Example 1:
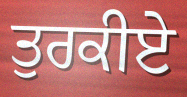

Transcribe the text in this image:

ਤੁਰਕੀਏ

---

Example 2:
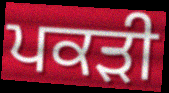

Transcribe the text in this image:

ਪਕੜੀ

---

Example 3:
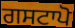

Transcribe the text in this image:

ਗਸਟਾਪੋ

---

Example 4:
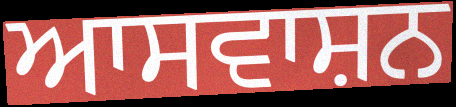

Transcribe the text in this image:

ਆਸਵਾਸ਼ਨ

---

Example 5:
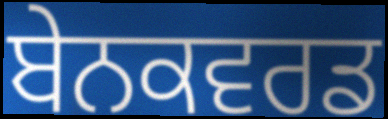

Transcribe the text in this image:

ਬੇਨਕਵਰਡ